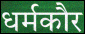
धर्मकौर